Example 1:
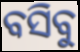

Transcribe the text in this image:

ବସିବୁ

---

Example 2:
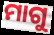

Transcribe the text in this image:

ମାଗୁ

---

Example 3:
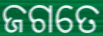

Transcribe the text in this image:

ଜଗତେ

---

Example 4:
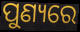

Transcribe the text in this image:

ପୁଣ୍ୟରେ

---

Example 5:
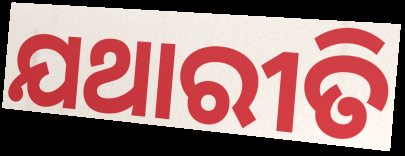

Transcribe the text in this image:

ଯଥାରୀତି